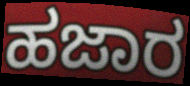
ಹಜಾರ